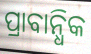
ପ୍ରାବାନ୍ଧିକ